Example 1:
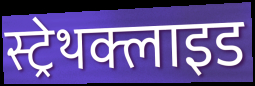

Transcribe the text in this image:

स्ट्रेथक्लाइड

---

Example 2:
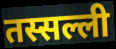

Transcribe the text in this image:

तस्सल्ली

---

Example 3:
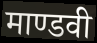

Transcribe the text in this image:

माण्डवी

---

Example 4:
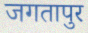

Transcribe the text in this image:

जगतापुर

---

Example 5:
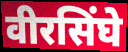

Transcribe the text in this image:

वीरसिंघे